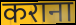
कराना